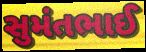
સુમંતભાઈ